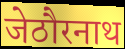
जेठौरनाथ